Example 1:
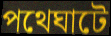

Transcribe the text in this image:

পথেঘাটে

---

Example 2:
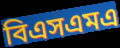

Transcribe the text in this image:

বিএসএমএ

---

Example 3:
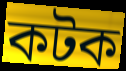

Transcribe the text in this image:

কটক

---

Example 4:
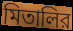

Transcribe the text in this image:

মিতালির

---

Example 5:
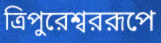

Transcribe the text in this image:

ত্রিপুরেশ্বররূপে